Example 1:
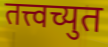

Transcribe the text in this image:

तत्त्वच्युत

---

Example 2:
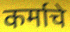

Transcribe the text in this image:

कर्माचे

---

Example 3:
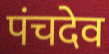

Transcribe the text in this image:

पंचदेव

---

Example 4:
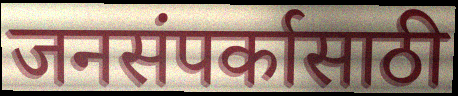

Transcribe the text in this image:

जनसंपर्कासाठी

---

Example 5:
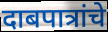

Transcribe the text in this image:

दाबपात्रांचे